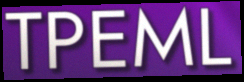
TPEML